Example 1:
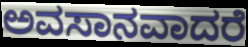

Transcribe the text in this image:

ಅವಸಾನವಾದರೆ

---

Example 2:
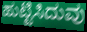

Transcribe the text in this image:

ಹುಟ್ಟಿಸಿದುವು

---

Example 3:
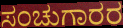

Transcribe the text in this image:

ಸಂಚುಗಾರರ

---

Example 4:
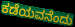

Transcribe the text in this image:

ಕಡೆಯವನೆಂದು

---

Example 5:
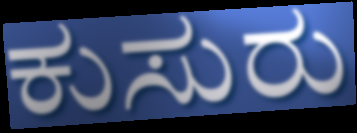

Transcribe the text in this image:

ಕುಸುರು